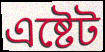
এষ্টেট